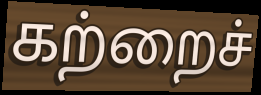
கற்றைச்